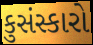
કુસંસ્કારો